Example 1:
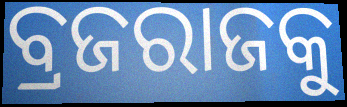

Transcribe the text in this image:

ବ୍ରଜରାଜକୁ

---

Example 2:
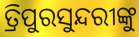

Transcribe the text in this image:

ତ୍ରିପୁରସୁନ୍ଦରୀଙ୍କୁ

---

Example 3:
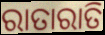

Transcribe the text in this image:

ରାତାରାତି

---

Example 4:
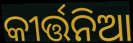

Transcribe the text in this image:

କୀର୍ତ୍ତନିଆ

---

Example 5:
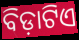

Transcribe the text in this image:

ବିଡ଼ାଟିଏ